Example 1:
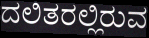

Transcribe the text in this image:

ದಲಿತರಲ್ಲಿರುವ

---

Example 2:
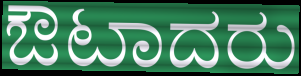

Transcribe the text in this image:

ಔಟಾದರು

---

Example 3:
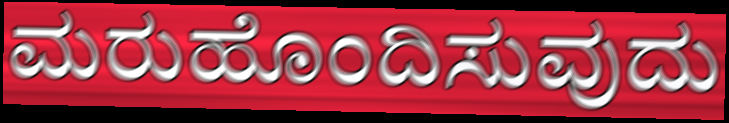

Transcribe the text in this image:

ಮರುಹೊಂದಿಸುವುದು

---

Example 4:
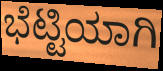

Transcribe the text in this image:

ಭೆಟ್ಟಿಯಾಗಿ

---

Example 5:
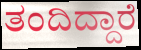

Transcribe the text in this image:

ತಂದಿದ್ದಾರೆ